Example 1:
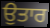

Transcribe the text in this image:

ਉਤਾਰ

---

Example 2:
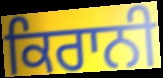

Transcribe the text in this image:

ਕਿਰਾਨੀ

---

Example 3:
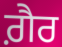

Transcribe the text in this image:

ਗ਼ੈਰ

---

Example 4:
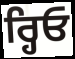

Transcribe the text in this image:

ਰ੍ਹਿਓ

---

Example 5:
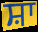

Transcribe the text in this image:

ਸ਼ਾ